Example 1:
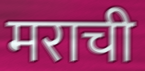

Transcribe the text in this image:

मराची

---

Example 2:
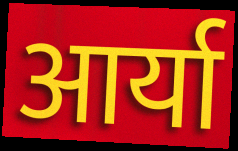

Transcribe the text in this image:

आर्या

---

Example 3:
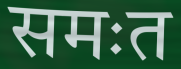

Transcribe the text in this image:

समःत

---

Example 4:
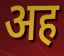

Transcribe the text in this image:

अह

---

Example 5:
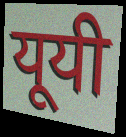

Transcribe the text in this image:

यूयी